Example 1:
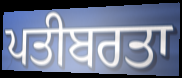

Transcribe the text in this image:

ਪਤੀਬਰਤਾ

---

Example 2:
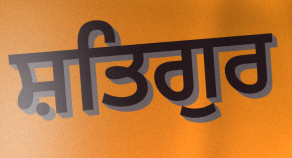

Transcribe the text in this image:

ਸ਼ਤਿਗੁਰ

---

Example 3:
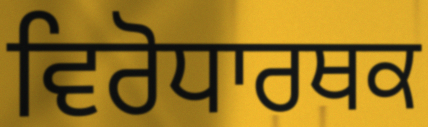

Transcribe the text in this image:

ਵਿਰੋਧਾਰਥਕ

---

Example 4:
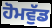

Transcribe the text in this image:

ਹੋਮਵੁੱਡ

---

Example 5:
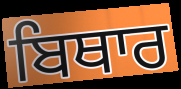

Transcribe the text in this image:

ਬਿਥਾਰ